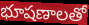
భూషణాలతో